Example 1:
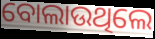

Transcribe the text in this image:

ବୋଲାଉଥିଲେ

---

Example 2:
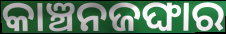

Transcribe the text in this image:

କାଞ୍ଚନଜଙ୍ଘାର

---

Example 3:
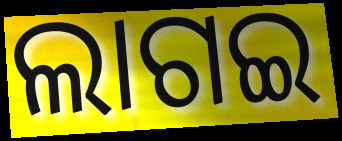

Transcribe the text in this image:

ଲାଗଇ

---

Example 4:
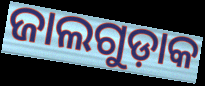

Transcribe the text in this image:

ଜାଲଗୁଡ଼ାକ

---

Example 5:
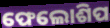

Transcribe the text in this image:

ଫେଲୋଶିପ